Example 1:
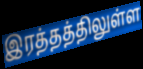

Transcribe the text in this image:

இரத்தத்திலுள்ள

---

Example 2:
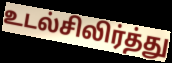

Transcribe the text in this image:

உடல்சிலிர்த்து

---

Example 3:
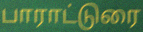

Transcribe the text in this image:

பாராட்டுரை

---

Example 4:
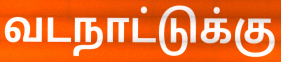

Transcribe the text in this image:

வடநாட்டுக்கு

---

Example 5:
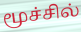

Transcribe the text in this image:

மூச்சில்